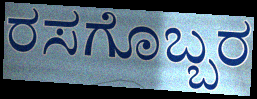
ರಸಗೊಬ್ಬರ